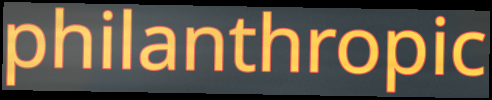
philanthropic